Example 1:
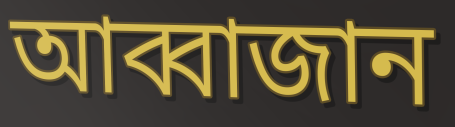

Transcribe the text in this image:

আব্বাজান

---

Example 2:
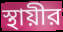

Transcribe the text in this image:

স্থায়ীর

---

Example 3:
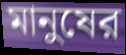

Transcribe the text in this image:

মানুষের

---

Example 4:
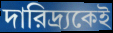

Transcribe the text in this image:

দারিদ্র্যকেই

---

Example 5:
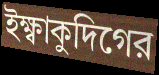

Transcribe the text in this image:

ইক্ষ্বাকুদিগের